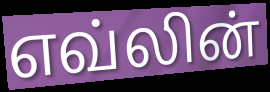
எவ்லின்